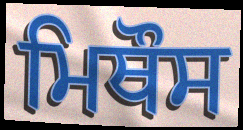
ਮਿਥੌਸ